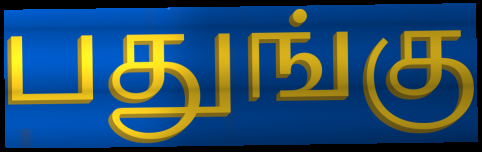
பதுங்கு